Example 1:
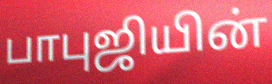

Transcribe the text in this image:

பாபுஜியின்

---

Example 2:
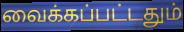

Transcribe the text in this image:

வைக்கப்பட்டதும்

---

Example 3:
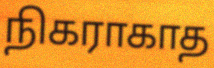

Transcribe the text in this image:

நிகராகாத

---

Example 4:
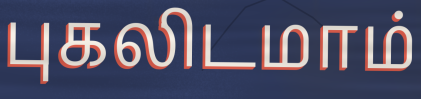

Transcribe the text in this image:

புகலிடமாம்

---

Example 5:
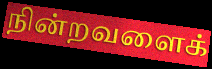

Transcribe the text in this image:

நின்றவளைக்